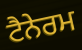
ਟੈਨੇਰਮ